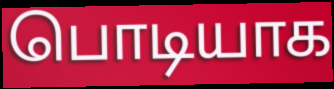
பொடியாக